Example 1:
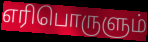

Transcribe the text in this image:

எரிபொருளும்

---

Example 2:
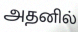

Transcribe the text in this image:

அதனில்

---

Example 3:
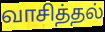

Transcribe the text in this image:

வாசித்தல்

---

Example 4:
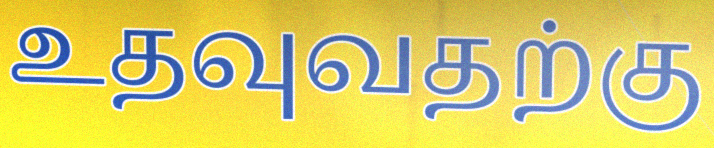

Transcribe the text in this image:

உதவுவதற்கு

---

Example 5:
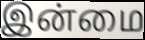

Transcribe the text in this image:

இன்மை